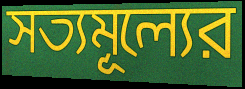
সত্যমূল্যের